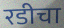
रडीचा